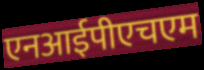
एनआईपीएचएम